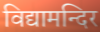
विद्यामन्दिर